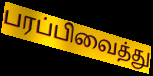
பரப்பிவைத்து